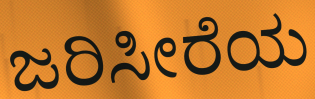
ಜರಿಸೀರೆಯ